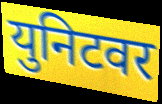
युनिटवर